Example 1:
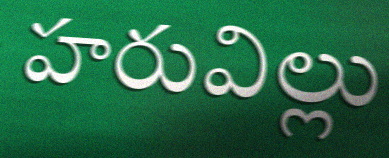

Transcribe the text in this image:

హరువిల్లు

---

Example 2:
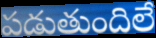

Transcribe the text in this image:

పడుతుందిలే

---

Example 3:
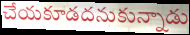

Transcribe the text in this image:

చేయకూడదనుకున్నాడు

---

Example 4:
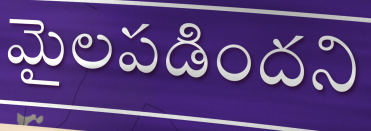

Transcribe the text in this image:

మైలపడిందని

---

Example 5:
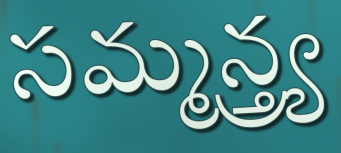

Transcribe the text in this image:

సమ్మన్త్ర్య